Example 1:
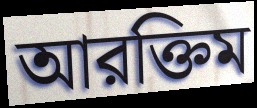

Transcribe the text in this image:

আরক্তিম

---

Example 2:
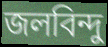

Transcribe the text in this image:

জলবিন্দু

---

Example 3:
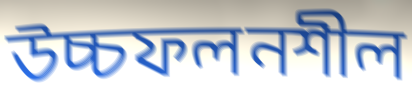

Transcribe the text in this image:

উচ্চফলনশীল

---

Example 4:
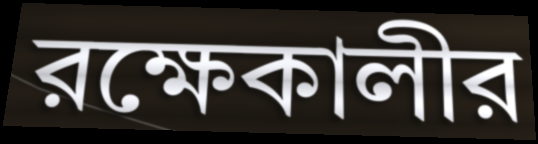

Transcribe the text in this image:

রক্ষেকালীর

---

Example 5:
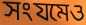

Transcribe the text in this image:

সংযমেও